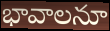
భావాలనూ